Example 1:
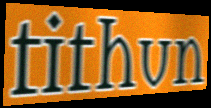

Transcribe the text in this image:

tithun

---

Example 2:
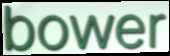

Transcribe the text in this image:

bower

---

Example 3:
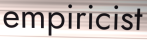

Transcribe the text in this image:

empiricist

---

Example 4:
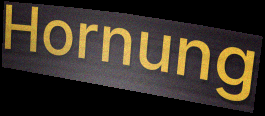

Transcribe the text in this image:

Hornung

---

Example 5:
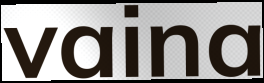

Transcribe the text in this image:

vaina